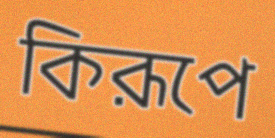
কিরূপে